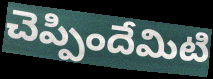
చెప్పిందేమిటి